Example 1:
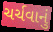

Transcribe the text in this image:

ચર્ચવાનું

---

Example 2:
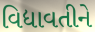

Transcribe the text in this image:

વિદ્યાવતીને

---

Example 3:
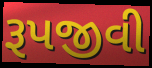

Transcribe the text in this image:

રૂપજીવી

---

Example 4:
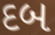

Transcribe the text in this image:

દબ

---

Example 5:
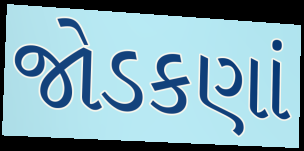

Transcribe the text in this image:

જોડકણાં